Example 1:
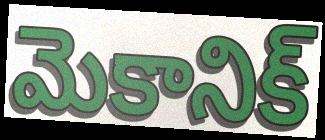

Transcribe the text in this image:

మెకానిక్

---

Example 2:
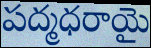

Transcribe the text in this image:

పద్మధరాయై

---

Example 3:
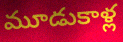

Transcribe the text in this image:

మూడుకాళ్ల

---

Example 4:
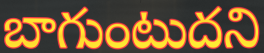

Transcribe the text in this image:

బాగుంటుదని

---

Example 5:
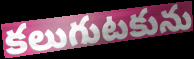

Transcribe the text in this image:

కలుగుటకును